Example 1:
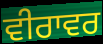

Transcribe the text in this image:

ਵੀਰਾਵਰ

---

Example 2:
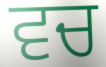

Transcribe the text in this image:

ਵਚ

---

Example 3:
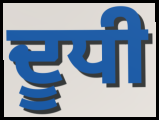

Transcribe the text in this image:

ਦੂਧੀ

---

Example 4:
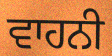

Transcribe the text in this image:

ਵਾਹਨੀ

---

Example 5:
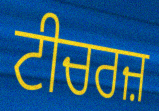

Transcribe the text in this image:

ਟੀਚਰਜ਼